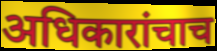
अधिकारांचाच